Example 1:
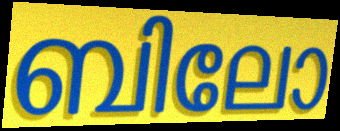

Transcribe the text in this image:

ബിലോ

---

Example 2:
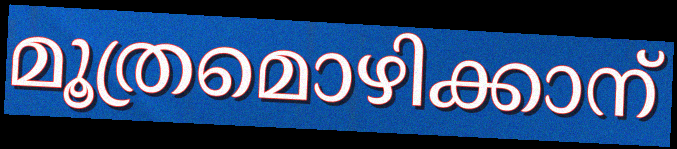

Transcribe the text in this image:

മൂത്രമൊഴിക്കാന്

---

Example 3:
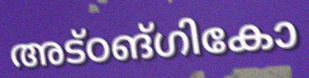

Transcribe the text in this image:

അട്ഠങ്ഗികോ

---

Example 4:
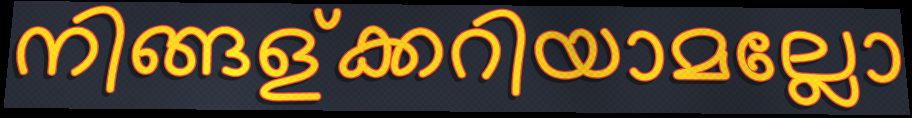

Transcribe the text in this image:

നിങ്ങള്ക്കറിയാമല്ലോ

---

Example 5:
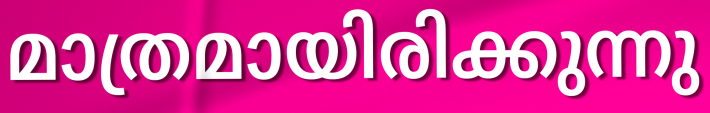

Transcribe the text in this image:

മാത്രമായിരിക്കുന്നു